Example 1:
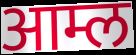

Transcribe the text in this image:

आम्ल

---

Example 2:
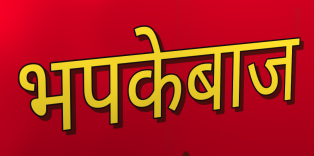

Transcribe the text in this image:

भपकेबाज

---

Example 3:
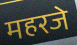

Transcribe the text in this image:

महरजे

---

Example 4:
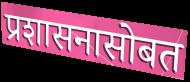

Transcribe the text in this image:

प्रशासनासोबत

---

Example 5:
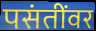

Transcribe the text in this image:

पसंतींवर